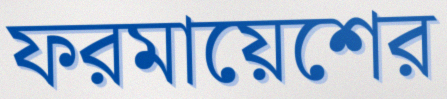
ফরমায়েশের